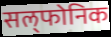
सल्फोनिक